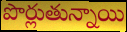
పొర్లుతున్నాయి